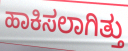
ಹಾಕಿಸಲಾಗಿತ್ತು